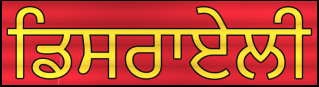
ਡਿਸਰਾਏਲੀ